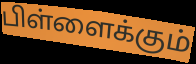
பிள்ளைக்கும்